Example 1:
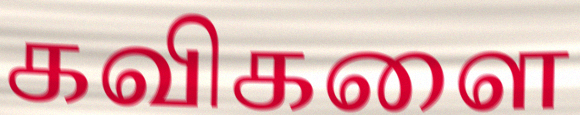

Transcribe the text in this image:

கவிகளை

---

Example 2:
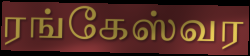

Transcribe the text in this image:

ரங்கேஸ்வர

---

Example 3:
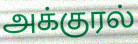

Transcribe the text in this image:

அக்குரல்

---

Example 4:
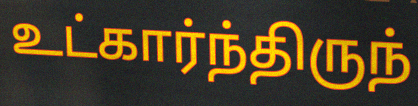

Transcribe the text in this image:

உட்கார்ந்திருந்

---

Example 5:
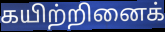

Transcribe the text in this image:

கயிற்றினைக்